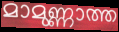
മാമുണ്ണാത്ത